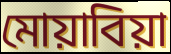
মোয়াবিয়া